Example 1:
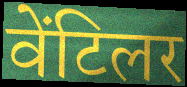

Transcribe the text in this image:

वेंटिलर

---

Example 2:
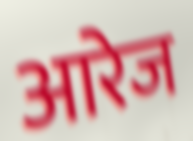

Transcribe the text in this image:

आरेज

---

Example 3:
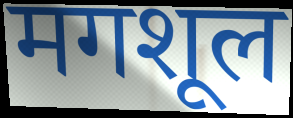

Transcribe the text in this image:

मगशूल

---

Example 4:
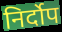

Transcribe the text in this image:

निर्दोप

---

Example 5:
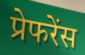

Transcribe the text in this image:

प्रेफरेंस